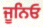
ਜੂਨਿਓ